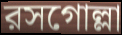
রসগোল্লা